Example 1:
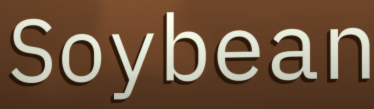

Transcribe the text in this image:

Soybean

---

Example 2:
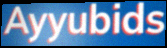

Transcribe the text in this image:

Ayyubids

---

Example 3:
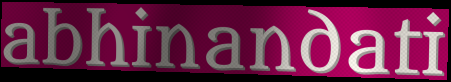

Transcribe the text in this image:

abhinandati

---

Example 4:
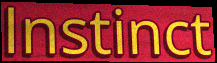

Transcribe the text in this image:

Instinct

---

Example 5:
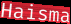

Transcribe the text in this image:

Haisma